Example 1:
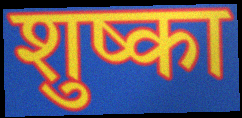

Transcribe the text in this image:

शुष्का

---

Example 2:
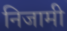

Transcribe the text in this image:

निजामी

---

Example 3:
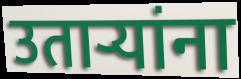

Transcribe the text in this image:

उताऱ्यांना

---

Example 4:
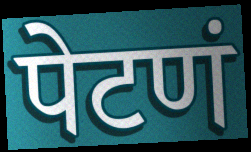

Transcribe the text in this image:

पेटणं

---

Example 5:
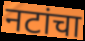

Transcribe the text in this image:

नटांचा